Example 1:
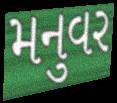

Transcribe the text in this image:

મનુવર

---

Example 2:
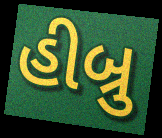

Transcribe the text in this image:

હીબ્રુ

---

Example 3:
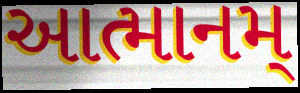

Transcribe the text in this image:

આત્માનમ્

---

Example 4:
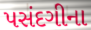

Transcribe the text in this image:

પસંદગીના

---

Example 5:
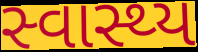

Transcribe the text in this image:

સ્વાસ્થ્ય